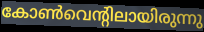
കോൺവെന്റിലായിരുന്നു